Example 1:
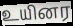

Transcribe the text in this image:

உயினர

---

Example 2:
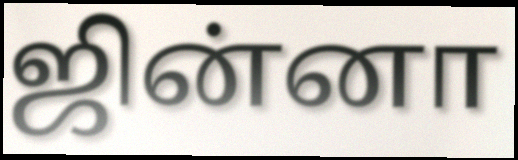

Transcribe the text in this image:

ஜின்னா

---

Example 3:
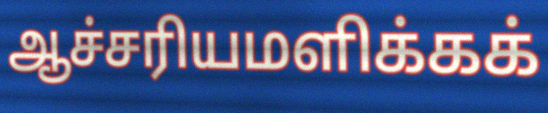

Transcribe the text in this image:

ஆச்சரியமளிக்கக்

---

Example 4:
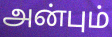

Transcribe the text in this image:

அன்பும்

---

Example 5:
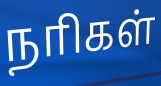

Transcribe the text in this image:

நரிகள்